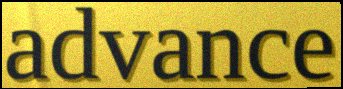
advance